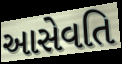
આસેવતિ